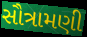
સૌત્રામણી